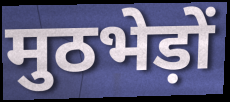
मुठभेड़ों